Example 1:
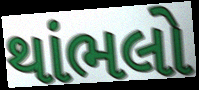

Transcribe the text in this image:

થાંભલો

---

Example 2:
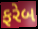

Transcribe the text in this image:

ફરેબ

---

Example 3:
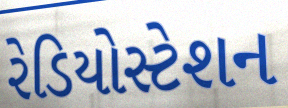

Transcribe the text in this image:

રેડિયોસ્ટેશન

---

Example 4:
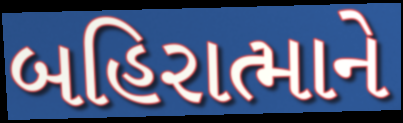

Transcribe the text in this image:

બહિરાત્માને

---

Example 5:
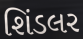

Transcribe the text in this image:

શિંડલર